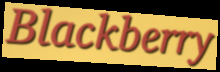
Blackberry